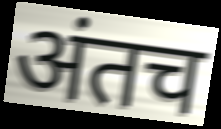
अंतच